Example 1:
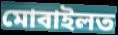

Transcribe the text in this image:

মোবাইলত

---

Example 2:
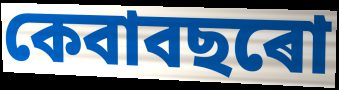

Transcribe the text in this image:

কেবাবছৰো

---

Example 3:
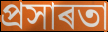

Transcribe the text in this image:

প্ৰসাৰতা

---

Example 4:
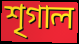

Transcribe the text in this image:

শৃগাল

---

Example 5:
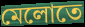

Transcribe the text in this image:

মেলোতে